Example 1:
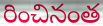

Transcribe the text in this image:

రించినంత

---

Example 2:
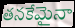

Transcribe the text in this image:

తనకేమైనా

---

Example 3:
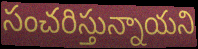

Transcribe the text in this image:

సంచరిస్తున్నాయని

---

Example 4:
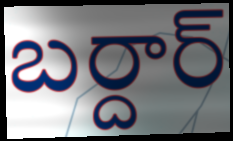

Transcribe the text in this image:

బర్దార్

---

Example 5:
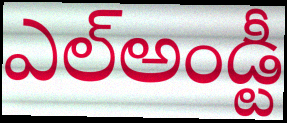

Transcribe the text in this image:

ఎల్అండ్టీ